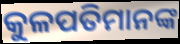
କୁଳପତିମାନଙ୍କ